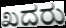
ಖದರು